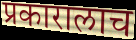
प्रकारालाच